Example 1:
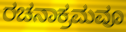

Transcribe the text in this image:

ರಚನಾಕ್ರಮವೂ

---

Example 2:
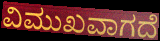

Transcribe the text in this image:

ವಿಮುಖವಾಗದೆ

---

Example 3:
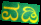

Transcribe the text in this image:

ವಡಿ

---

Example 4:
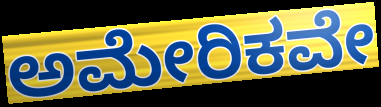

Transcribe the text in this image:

ಅಮೇರಿಕವೇ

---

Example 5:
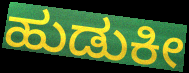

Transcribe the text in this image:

ಹುಡುಕೀ